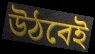
উঠবেই